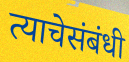
त्याचेसंबंधी